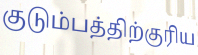
குடும்பத்திற்குரிய